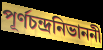
পূর্ণচন্দ্রনিভাননী